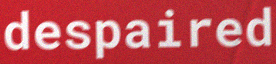
despaired